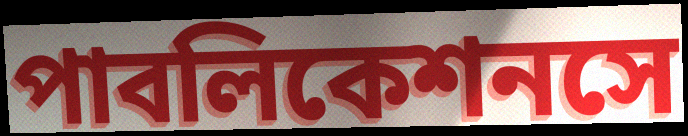
পাবলিকেশনসে